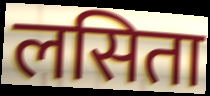
लसिता